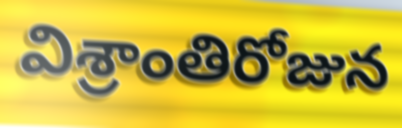
విశ్రాంతిరోజున